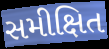
સમીક્ષિત